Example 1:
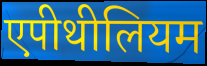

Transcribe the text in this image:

एपीथीलियम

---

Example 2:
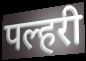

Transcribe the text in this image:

पल्हरी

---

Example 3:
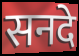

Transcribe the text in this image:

सनदे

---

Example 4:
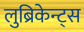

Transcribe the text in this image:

लुब्रिकेन्ट्स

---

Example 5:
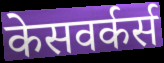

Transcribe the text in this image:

केसवर्कर्स